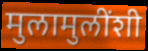
मुलामुलींशी